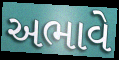
અભાવે